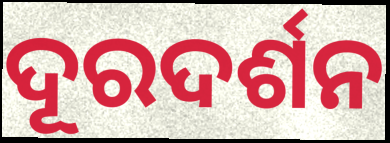
ଦୂରଦର୍ଶନ